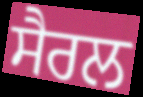
ਸੈਰਲ